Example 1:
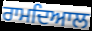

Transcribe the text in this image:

ਰਾਮਦਿਆਲ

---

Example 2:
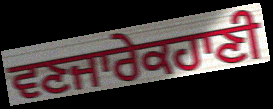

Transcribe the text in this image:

ਵਣਜਾਰੇਕਹਾਣੀ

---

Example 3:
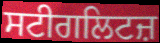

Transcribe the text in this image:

ਸਟੀਗਲਿਟਜ਼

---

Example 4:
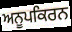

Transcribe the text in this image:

ਅਨੂਪਕਿਰਨ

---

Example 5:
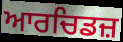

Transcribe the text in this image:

ਆਰਚਿਡਜ਼